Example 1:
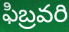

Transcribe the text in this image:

ఫిబ్రవరి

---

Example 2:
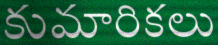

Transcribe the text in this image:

కుమారికలు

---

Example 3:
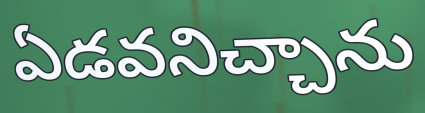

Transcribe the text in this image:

ఏడవనిచ్చాను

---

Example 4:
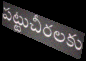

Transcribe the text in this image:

పట్టుచీరలకు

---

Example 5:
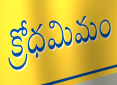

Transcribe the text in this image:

క్రోధమిమం